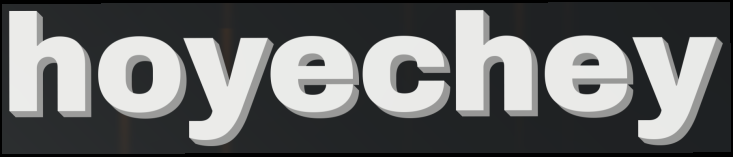
hoyechey